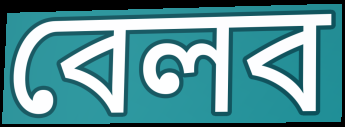
বেলব